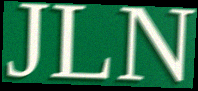
JLN